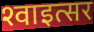
श्वाइत्सर